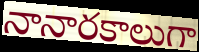
నానారకాలుగా